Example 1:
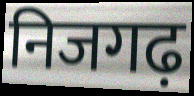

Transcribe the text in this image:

निजगढ़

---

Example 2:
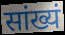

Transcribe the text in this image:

सांख्यं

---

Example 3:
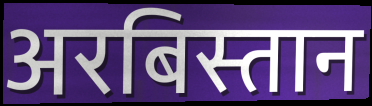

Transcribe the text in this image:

अरबिस्तान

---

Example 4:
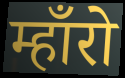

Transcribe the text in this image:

म्हाँरो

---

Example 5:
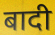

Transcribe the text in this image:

बादी